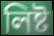
লিষ্ট